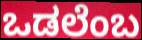
ಒಡಲೆಂಬ